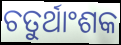
ଚତୁର୍ଥାଂଶକ